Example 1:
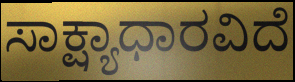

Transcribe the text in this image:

ಸಾಕ್ಷ್ಯಾಧಾರವಿದೆ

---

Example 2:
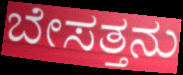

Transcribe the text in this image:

ಬೇಸತ್ತನು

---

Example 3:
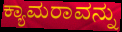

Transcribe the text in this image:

ಕ್ಯಾಮರಾವನ್ನು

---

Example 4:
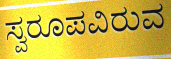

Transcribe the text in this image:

ಸ್ವರೂಪವಿರುವ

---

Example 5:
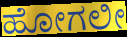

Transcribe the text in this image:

ಹೋಗಲೀ